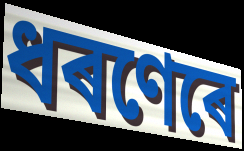
ধৰণেৰে